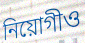
নিয়োগীও